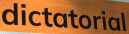
dictatorial